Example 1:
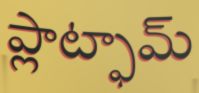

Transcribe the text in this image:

ప్లాట్ఫామ్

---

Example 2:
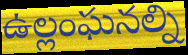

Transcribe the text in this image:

ఉల్లంఘనల్ని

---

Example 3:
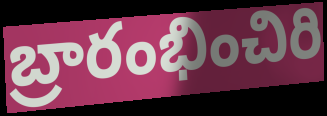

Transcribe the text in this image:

బ్రారంభించిరి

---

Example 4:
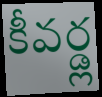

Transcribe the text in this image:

కీవర్డ్ల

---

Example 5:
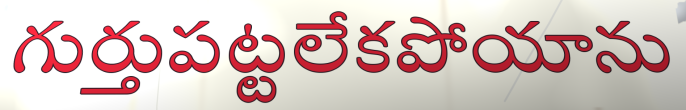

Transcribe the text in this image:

గుర్తుపట్టలేకపోయాను